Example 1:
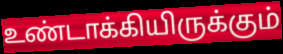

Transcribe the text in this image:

உண்டாக்கியிருக்கும்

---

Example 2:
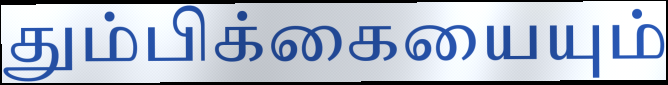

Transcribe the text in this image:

தும்பிக்கையையும்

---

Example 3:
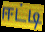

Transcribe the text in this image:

ஈட்டி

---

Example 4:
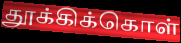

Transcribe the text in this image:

தூக்கிக்கொள்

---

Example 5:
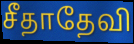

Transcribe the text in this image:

சீதாதேவி